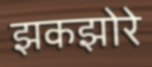
झकझोरे